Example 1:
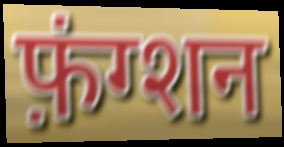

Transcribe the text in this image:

फ़ंग्शन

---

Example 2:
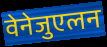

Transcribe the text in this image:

वेनेजुएलन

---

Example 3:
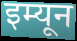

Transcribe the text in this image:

इम्‍यून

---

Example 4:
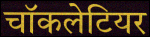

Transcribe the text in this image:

चॉकलेटियर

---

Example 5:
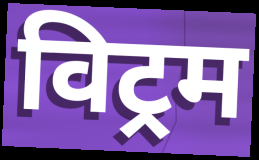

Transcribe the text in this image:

विट्रम